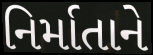
નિર્માતાને